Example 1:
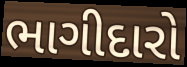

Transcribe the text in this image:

ભાગીદારો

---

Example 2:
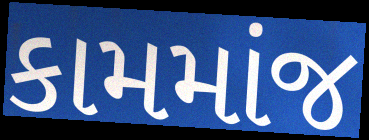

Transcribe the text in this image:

કામમાંજ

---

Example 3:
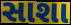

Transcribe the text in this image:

સાશા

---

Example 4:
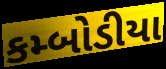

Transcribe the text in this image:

કમ્બોડીયા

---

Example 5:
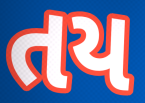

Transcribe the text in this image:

તય